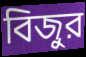
বিজুর